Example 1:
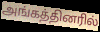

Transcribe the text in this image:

அங்கத்தினரில்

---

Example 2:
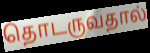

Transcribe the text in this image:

தொடருவதால்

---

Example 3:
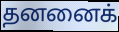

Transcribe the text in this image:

தனனைக்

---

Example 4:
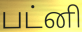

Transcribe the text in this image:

பட்னி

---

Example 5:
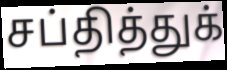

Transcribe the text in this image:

சப்தித்துக்